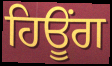
ਹਿਊੰਗ